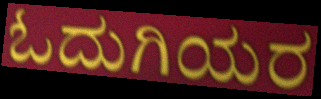
ಓದುಗಿಯರ